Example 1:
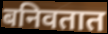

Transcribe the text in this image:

बनिवतात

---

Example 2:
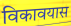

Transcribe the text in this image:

विकावयास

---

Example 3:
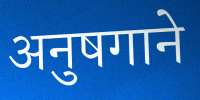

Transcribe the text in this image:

अनुषगाने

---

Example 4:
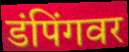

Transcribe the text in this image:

डंपिंगवर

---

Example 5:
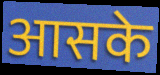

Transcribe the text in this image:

आसके